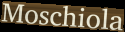
Moschiola